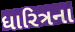
ધારિત્રના